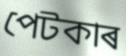
পেটকাৰ